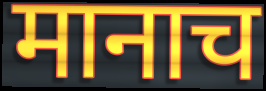
मानाच